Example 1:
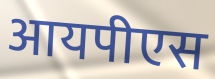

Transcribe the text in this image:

आयपीएस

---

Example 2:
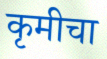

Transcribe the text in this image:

कृमीचा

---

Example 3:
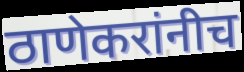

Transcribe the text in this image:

ठाणेकरांनीच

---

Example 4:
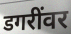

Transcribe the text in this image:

डगरींवर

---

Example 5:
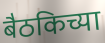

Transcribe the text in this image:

बैठकिच्या